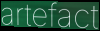
artefact